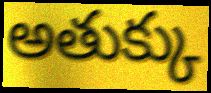
అతుక్కు